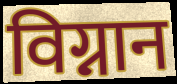
विग्नान